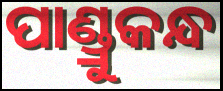
ପାଣ୍ଡ୍ରୁକନ୍ଧ